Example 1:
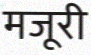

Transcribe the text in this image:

मजूरी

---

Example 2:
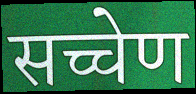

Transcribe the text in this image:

सच्चेण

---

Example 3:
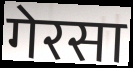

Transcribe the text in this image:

गेरसा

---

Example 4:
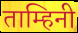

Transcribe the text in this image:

ताम्हिनी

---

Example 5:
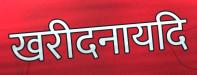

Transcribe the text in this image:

खरीदनायदि